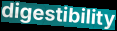
digestibility